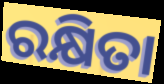
ରକ୍ଷିତା